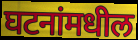
घटनांमधील